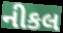
નીકલ